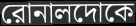
রোনালদোকে